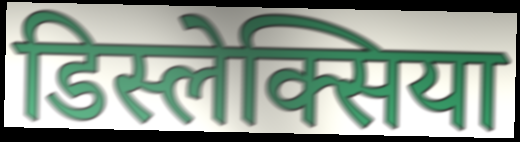
डिस्लेक्सिया